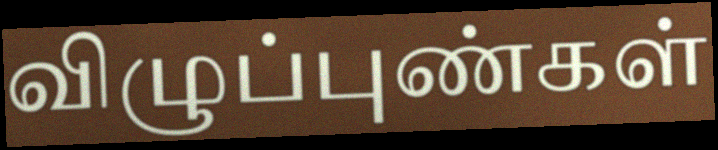
விழுப்புண்கள்